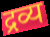
द्रव्य